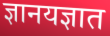
ज्ञानयज्ञात